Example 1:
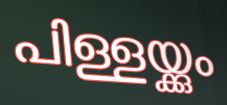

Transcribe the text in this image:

പിള്ളയ്ക്കും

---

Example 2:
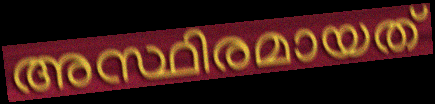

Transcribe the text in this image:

അസ്ഥിരമായത്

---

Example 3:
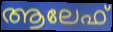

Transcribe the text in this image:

ആലേഫ്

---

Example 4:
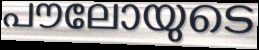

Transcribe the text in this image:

പൗലോയുടെ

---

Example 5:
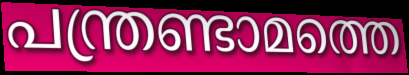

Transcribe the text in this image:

പന്ത്രണ്ടാമത്തെ